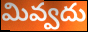
మివ్వదు